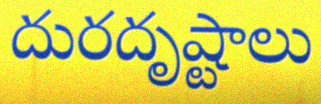
దురదృష్టాలు